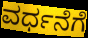
ವರ್ಧನೆಗೆ